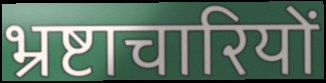
भ्रष्टाचारियों